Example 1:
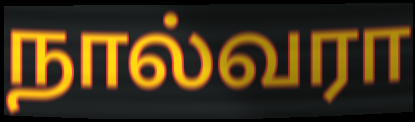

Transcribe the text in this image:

நால்வரா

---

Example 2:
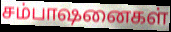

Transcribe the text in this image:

சம்பாஷனைகள்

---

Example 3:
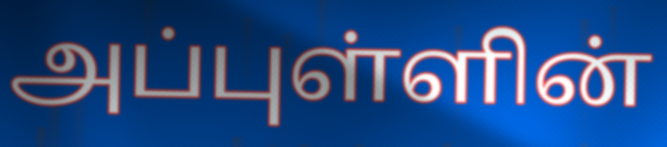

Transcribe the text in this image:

அப்புள்ளின்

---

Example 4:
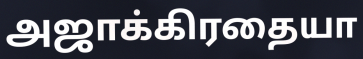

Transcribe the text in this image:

அஜாக்கிரதையா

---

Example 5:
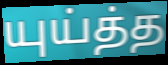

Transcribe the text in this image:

யுய்த்த